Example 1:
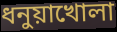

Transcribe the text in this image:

ধনুয়াখোলা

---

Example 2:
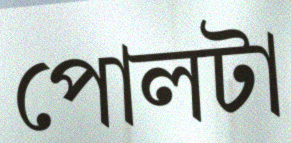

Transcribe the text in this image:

পোলটা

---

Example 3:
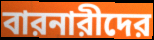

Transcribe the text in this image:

বারনারীদের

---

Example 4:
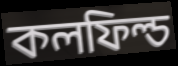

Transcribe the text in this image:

কলফিল্ড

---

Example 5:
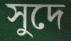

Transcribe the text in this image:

সুদে